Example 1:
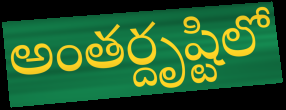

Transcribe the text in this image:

అంతర్దృష్టిలో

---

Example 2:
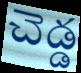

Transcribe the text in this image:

చెడ్డ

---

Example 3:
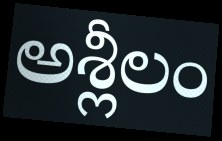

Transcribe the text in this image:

అశ్లీలం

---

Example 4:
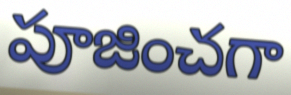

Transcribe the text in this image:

పూజించగా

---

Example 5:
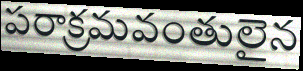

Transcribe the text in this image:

పరాక్రమవంతులైన